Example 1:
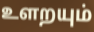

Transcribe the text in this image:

உளறயும்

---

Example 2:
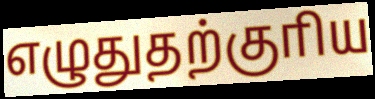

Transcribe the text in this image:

எழுதுதற்குரிய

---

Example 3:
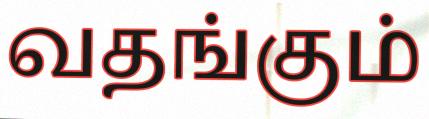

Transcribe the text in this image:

வதங்கும்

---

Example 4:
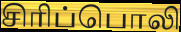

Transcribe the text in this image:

சிரிப்பொலி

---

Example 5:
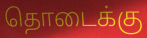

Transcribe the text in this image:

தொடைக்கு